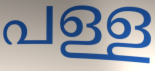
പള്ള